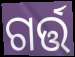
ଗର୍ତ୍ତ